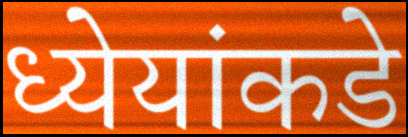
ध्येयांकडे